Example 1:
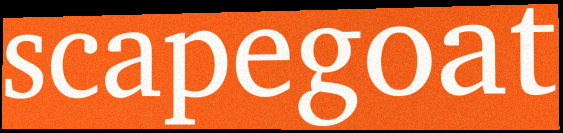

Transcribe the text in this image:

scapegoat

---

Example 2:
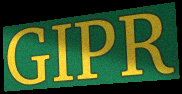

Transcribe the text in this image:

GIPR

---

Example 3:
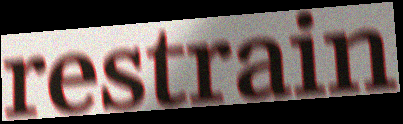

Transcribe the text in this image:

restrain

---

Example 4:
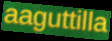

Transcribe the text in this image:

aaguttilla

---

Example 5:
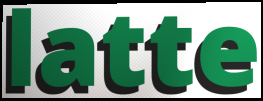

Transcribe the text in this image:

latte